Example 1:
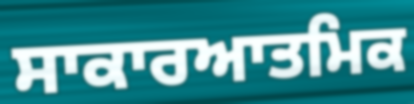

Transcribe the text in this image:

ਸਾਕਾਰਆਤਮਿਕ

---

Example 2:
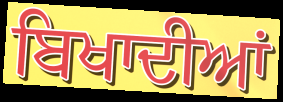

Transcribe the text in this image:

ਬਿਖਾਦੀਆਂ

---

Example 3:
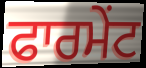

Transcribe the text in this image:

ਫਾਰਮੇਂਟ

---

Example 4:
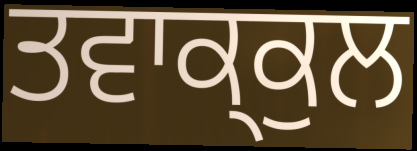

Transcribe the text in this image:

ਤਵਾਕ੍ਕੁਲ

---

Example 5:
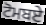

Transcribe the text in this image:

ਟੋਮਬਏ